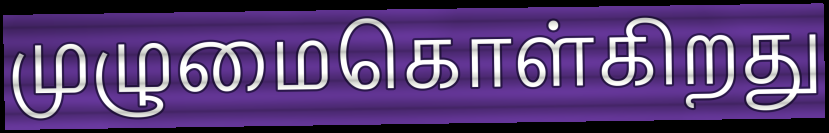
முழுமைகொள்கிறது